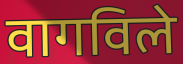
वागविले